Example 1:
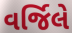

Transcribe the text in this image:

વર્જિલે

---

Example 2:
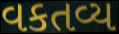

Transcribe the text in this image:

વકતવ્ય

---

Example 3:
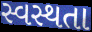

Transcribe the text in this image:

સ્વસ્થતા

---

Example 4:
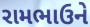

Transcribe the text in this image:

રામભાઉને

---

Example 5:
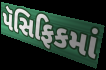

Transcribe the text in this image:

પૅસિફિકમાં